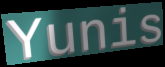
Yunis